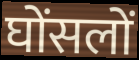
घोंसलों